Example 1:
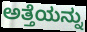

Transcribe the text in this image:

ಅತ್ತೆಯನ್ನು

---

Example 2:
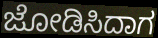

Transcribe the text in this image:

ಜೋಡಿಸಿದಾಗ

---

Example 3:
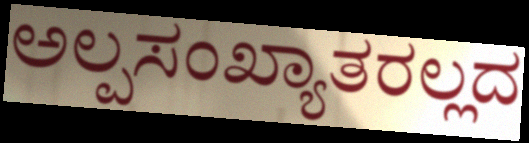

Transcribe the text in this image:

ಅಲ್ಪಸಂಖ್ಯಾತರಲ್ಲದ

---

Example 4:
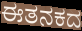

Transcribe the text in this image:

ಈತನಕದ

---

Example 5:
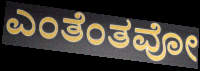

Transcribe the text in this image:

ಎಂತೆಂತವೋ